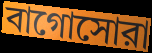
বাগোসোরা